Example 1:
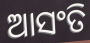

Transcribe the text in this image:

ଆସଂତି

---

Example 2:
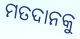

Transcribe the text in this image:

ମତଦାନକୁ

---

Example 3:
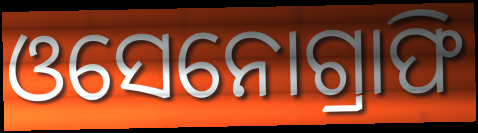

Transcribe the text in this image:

ଓସେନୋଗ୍ରାଫି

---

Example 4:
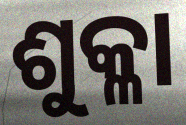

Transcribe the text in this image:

ଶୁକ୍ଳା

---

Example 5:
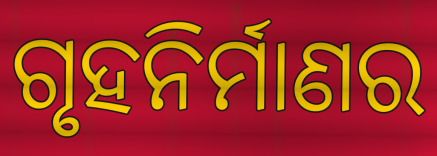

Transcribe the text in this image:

ଗୃହନିର୍ମାଣର